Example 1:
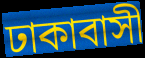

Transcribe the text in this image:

ঢাকাবাসী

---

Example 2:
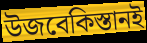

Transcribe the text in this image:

উজবেকিস্তানই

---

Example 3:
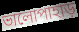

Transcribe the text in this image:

ভালোপাহাড়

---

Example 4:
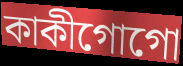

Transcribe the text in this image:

কাকীগোগো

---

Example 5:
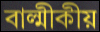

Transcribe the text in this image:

বাল্মীকীয়